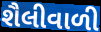
શૈલીવાળી